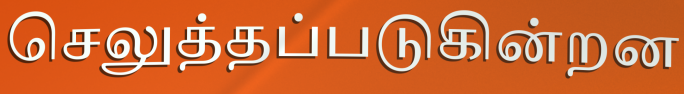
செலுத்தப்படுகின்றன